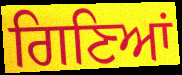
ਗਿਣਿਆਂ